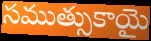
సముత్సుకాయై